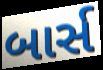
બાર્સ